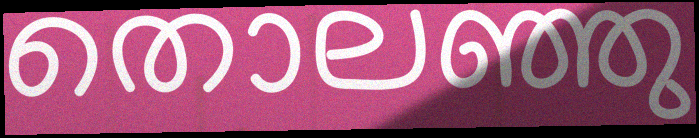
തൊലഞ്ഞു